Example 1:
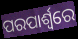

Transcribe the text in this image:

ପରପାର୍ଶ୍ୱରେ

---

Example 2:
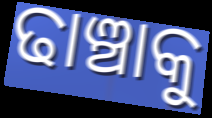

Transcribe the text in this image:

ଢାଞ୍ଚାକୁ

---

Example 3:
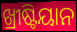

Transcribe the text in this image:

ଖ୍ରୀଷ୍ଟିୟାନ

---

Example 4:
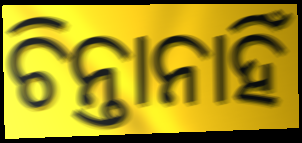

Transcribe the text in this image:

ଚିନ୍ତାନାହିଁ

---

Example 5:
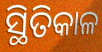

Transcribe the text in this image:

ସ୍ଥିତିକାଳ